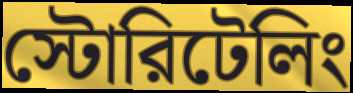
স্টোরিটেলিং